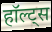
हॉल्ट्स